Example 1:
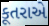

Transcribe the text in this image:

કૂતરાએ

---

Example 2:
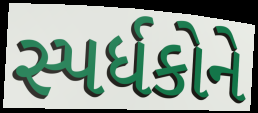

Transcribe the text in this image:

સ્પર્ધકોને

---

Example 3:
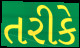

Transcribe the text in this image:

તરીકે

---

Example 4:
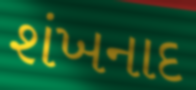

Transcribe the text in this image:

શંખનાદ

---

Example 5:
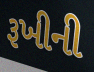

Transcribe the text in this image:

રૂખીની